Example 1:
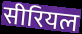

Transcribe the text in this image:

सीरियल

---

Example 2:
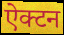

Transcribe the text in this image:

ऐक्टन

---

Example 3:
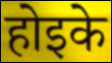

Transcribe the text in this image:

होइके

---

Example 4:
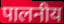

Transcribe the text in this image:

पालनीय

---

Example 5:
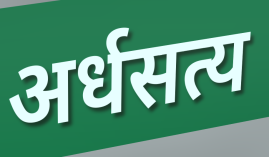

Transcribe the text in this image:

अर्धसत्य